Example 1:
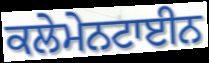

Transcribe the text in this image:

ਕਲੇਮੇਨਟਾਈਨ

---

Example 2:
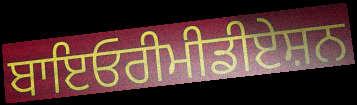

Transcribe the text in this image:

ਬਾਇਓਰੀਮੀਡੀਏਸ਼ਨ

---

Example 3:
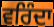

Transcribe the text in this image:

ਵਰਿੰਦਾ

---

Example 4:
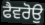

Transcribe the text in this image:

ਫੈਵਰੋਉ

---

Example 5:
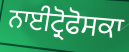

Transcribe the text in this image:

ਨਾਈਟ੍ਰੋਫੋਸਕਾ